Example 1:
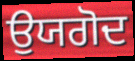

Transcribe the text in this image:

ਉਯਗੋਦ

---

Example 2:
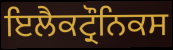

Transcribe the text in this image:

ਇਲੈਕਟ੍ਰੌਨਿਕਸ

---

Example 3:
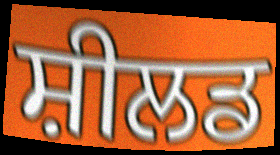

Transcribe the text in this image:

ਸ਼ੀਲਡ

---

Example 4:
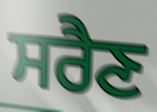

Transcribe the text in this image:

ਸਰੈਣ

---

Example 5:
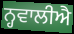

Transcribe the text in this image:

ਨ੍ਹਵਾਲੀਐ